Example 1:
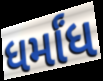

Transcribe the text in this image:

ધર્માંધ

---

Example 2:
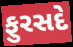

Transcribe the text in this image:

ફુરસદે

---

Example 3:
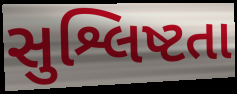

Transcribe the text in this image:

સુશ્લિષ્ટતા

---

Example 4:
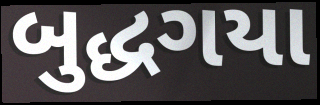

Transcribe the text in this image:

બુદ્ધગયા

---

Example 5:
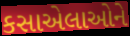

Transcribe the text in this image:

કસાએલાઓને